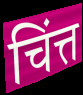
चिंत्त